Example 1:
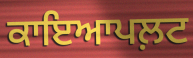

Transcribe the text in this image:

ਕਾਇਆਪਲ਼ਟ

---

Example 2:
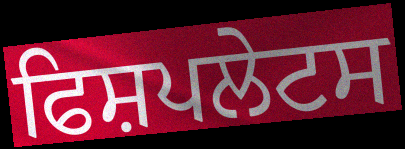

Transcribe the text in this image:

ਫਿਸ਼ਪਲੇਟਸ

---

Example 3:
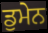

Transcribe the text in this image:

ਡੁਮੇਨ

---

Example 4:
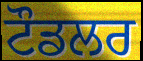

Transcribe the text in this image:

ਟੌਡਲਰ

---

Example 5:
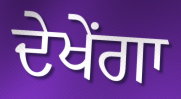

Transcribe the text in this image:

ਦੇਖੇਂਗਾ